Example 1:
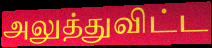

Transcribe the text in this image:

அலுத்துவிட்ட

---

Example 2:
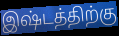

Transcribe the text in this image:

இஷ்டத்திற்கு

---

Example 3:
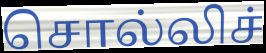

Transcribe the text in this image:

சொல்லிச்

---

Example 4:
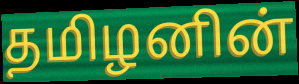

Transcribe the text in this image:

தமிழனின்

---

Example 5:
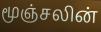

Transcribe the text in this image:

மூஞ்சலின்